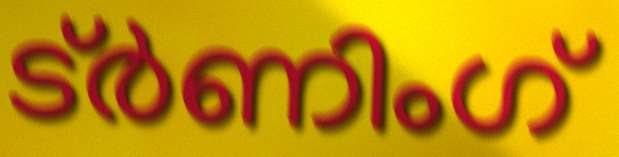
ട്ർണിംഗ്